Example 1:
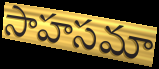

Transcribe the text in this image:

సాహసమా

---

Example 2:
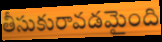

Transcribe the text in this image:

తీసుకురావడమైంది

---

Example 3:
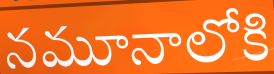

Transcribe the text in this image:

నమూనాలోకి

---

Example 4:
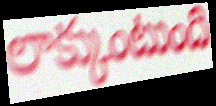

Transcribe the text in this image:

లాక్కుంటుంది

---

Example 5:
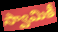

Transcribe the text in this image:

స్వామికీ